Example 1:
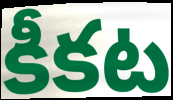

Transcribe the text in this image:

కీకట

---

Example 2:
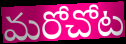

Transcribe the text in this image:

మరోచోట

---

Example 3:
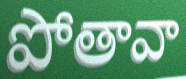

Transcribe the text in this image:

పోతావా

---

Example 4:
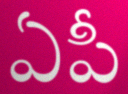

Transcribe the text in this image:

ఏపీ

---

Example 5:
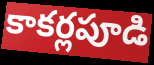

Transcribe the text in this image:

కాకర్లపూడి